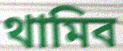
থামিব